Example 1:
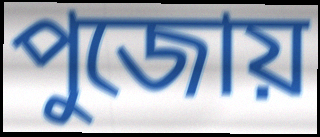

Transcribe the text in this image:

পুজোয়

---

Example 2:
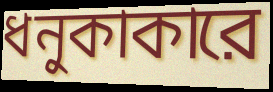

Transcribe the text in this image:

ধনুকাকারে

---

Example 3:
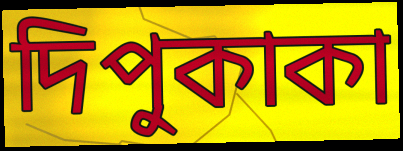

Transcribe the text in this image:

দিপুকাকা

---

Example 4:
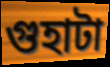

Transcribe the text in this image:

গুহাটা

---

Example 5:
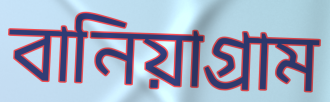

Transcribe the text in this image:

বানিয়াগ্রাম